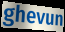
ghevun